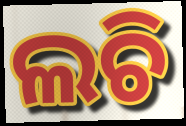
ଲଚି